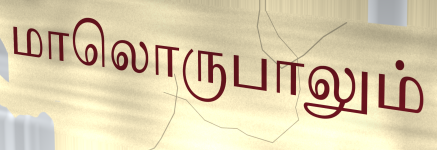
மாலொருபாலும்